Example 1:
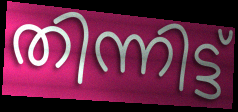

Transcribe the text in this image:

തിന്നിട്ട്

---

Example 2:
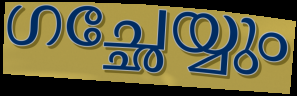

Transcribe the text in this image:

ഗച്ഛേയ്യും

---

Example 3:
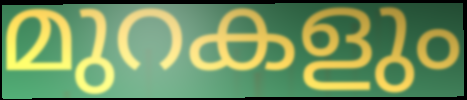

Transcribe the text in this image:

മുറകളും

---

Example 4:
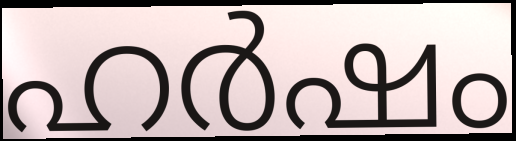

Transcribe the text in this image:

ഹർഷം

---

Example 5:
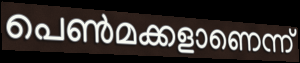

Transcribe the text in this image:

പെൺമക്കളാണെന്ന്